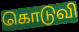
கொடுவி